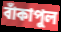
বাঁকাপুল